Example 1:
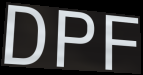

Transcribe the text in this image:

DPF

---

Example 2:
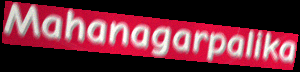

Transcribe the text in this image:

Mahanagarpalika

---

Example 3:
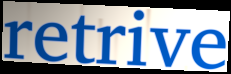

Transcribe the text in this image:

retrive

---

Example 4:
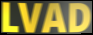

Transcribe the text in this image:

LVAD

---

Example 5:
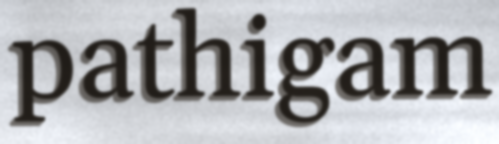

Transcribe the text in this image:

pathigam